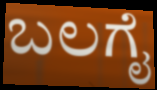
ಬಲಗೈ